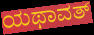
ಯಥಾವತ್